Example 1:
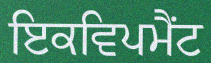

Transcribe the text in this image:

ਇਕਵਿਪਮੈਂਟ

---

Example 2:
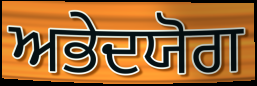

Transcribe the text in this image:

ਅਭੇਦਯੋਗ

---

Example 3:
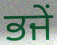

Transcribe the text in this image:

ਭਜੇਂ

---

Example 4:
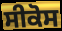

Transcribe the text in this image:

ਸੀਕੋਸ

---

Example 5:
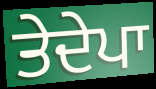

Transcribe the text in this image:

ਤੇਦੇਪਾ